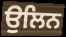
ਉਲਿਨ